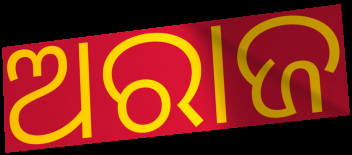
ଅରାଜ